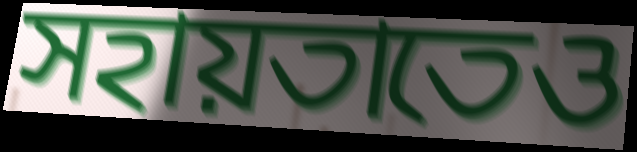
সহায়তাতেও